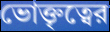
ভোক্তৃত্বের